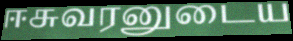
ஈசுவரனுடைய